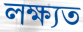
লক্ষ্য়ত